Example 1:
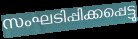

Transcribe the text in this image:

സംഘടിപ്പിക്കപ്പെട്ടു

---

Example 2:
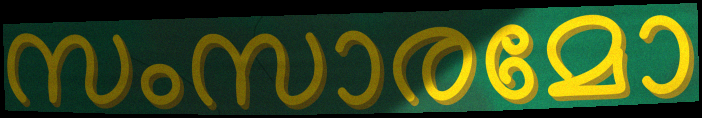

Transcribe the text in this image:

സംസാരമോ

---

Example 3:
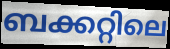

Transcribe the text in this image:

ബക്കറ്റിലെ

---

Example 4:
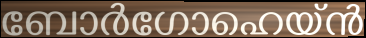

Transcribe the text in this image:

ബോർഗോഹെയ്ൻ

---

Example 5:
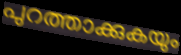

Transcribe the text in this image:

പുറത്താക്കുകയും